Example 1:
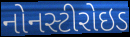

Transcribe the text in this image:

નોનસ્ટીરોઇડ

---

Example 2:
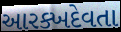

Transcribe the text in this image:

આરક્ખદેવતા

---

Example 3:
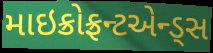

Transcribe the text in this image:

માઇક્રોફ્રન્ટએન્ડ્સ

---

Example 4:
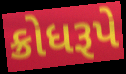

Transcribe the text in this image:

ક્રોધરૂપે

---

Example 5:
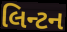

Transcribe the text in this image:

લિન્ટન